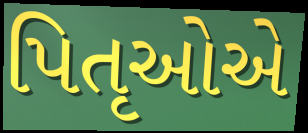
પિતૃઓએ